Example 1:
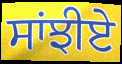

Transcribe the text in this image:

ਸਾਂਝੀਏ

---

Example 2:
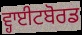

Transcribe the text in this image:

ਵ੍ਹਾਈਟਬੋਰਡ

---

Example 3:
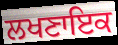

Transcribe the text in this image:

ਲਖਣਾਇਕ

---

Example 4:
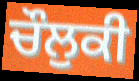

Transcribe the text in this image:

ਚੌਲੁਕੀ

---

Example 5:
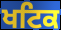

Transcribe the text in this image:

ਖਟਿਕ